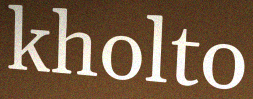
kholto